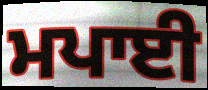
ਮਪਾਈ